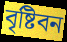
বৃষ্টিবন